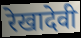
रेखादेवी